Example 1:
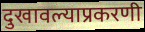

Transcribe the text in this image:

दुखावल्याप्रकरणी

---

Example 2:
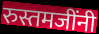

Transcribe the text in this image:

रुस्तमजींनी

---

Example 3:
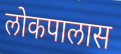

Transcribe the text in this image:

लोकपालास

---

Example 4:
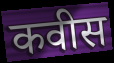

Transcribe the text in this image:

कवीस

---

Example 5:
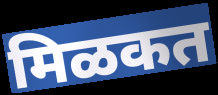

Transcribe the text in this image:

मिळकत